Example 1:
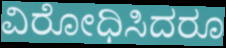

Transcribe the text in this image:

ವಿರೋಧಿಸಿದರೂ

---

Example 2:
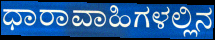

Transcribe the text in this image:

ಧಾರಾವಾಹಿಗಳಲ್ಲಿನ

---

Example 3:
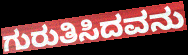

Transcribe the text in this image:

ಗುರುತಿಸಿದವನು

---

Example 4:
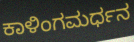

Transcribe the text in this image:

ಕಾಳಿಂಗಮರ್ಧನ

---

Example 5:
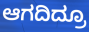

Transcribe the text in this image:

ಆಗದಿದ್ರೂ